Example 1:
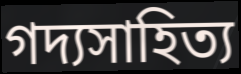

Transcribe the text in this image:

গদ্যসাহিত্য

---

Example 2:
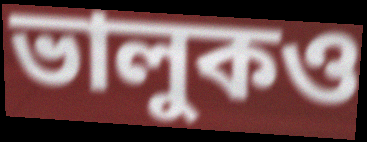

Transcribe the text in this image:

ভালুকও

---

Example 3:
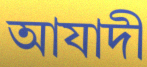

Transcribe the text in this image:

আযাদী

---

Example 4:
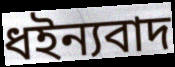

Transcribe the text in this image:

ধইন্যবাদ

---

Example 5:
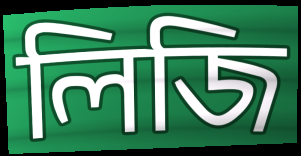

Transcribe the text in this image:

লিজি